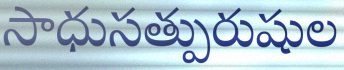
సాధుసత్పురుషుల